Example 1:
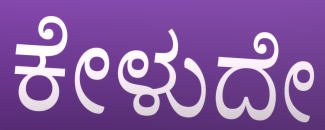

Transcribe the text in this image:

ಕೇಳುದೇ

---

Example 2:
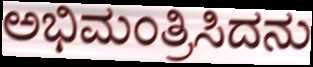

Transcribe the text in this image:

ಅಭಿಮಂತ್ರಿಸಿದನು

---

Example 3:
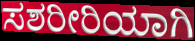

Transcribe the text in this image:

ಸಶರೀರಿಯಾಗಿ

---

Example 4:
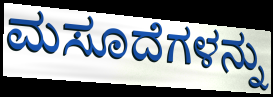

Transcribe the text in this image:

ಮಸೂದೆಗಳನ್ನು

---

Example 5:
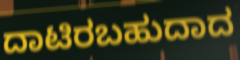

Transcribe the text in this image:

ದಾಟಿರಬಹುದಾದ